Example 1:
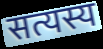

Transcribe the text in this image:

सत्यस्य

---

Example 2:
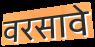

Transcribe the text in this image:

वरसावे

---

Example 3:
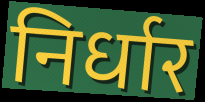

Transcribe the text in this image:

निर्धार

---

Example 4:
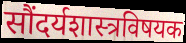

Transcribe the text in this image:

सौंदर्यशास्त्रविषयक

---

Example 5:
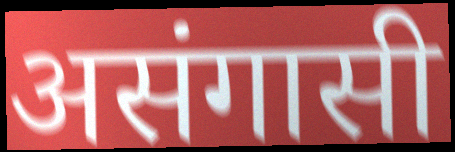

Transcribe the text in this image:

असंगासी